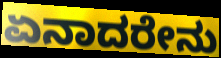
ಏನಾದರೇನು